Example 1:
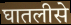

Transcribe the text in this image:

घातलीसे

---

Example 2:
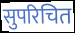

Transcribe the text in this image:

सुपरिचित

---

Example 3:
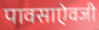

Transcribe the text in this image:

पावसाऐवजी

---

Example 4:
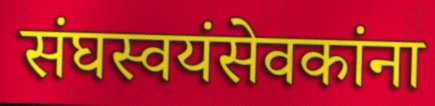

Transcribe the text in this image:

संघस्वयंसेवकांना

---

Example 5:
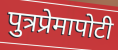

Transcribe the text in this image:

पुत्रप्रेमापोटी